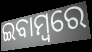
ଇବାମ୍ବରେ